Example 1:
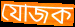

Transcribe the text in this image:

যোজক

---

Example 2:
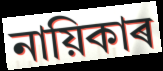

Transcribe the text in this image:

নায়িকাৰ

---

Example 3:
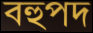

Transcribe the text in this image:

বহুপদ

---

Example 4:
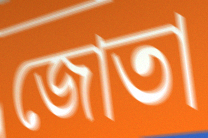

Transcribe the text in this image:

জোতা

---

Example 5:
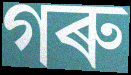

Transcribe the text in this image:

গৰু